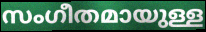
സംഗീതമായുള്ള